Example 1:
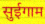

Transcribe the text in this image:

सुईगाम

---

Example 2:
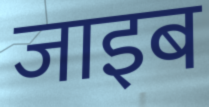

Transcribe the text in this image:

जाइब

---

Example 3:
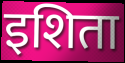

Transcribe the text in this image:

इशिता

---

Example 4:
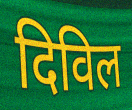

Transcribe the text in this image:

दिविल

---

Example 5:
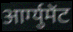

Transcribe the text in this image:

आर्ग्युमेंट